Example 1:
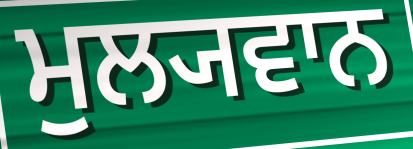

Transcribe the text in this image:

ਮੁਲ੍ਯਵਾਨ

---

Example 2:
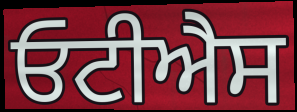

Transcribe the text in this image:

ਓਟੀਐਸ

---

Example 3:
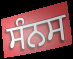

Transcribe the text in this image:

ਸੰਨਸ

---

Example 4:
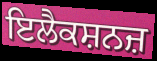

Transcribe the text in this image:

ਇਲੈਕਸ਼ਨਜ਼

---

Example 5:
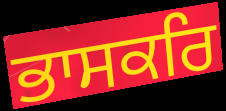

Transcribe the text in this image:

ਭਾਸਕਰਿ